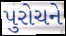
પુરોચને